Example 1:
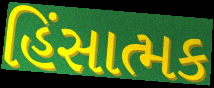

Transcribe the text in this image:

હિંસાત્મક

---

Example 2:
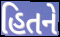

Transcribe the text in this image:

હિતને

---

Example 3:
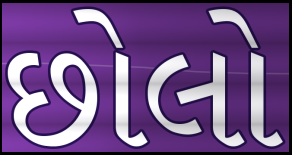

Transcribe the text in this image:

છોલો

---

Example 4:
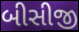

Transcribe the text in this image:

બીસીજી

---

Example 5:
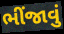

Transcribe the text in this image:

ભીંજાવું